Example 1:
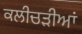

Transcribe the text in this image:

ਕਲੀਚੜੀਆਂ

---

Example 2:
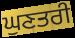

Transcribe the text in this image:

ਘੁਣਤਰੀ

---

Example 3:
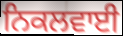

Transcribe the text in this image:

ਨਿਕਲਵਾਈ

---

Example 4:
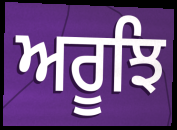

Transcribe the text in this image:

ਅਰੂਝਿ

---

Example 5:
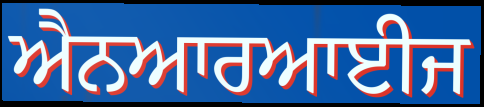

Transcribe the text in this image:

ਐਨਆਰਆਈਜ